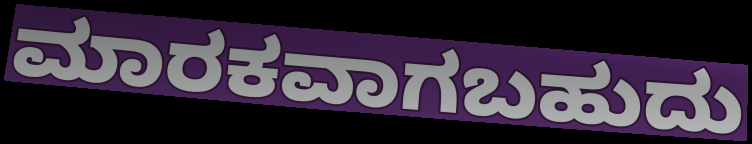
ಮಾರಕವಾಗಬಹುದು